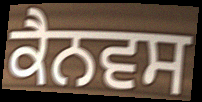
ਕੈਨਵਸ